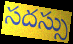
సదస్సు